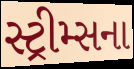
સ્ટ્રીમ્સના